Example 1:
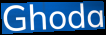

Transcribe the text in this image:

Ghoda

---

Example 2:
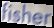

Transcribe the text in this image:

fisher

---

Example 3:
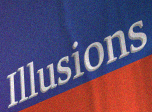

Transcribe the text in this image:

Illusions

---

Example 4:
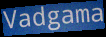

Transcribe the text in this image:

Vadgama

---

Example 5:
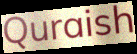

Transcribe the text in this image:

Quraish